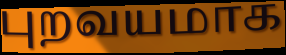
புறவயமாக